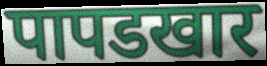
पापडखार